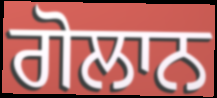
ਗੋਲਾਨ